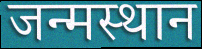
जन्मस्थान